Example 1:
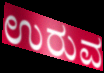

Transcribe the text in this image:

ಉರುವ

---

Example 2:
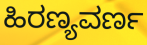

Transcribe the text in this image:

ಹಿರಣ್ಯವರ್ಣ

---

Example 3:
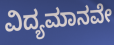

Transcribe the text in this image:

ವಿದ್ಯಮಾನವೇ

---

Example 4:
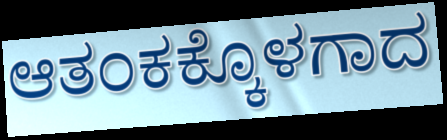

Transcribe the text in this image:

ಆತಂಕಕ್ಕೊಳಗಾದ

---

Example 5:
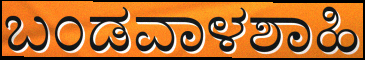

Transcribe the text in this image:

ಬಂಡವಾಳಶಾಹಿ